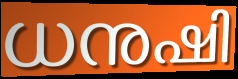
ധനുഷി